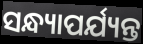
ସନ୍ଧ୍ୟାପର୍ଯ୍ୟନ୍ତ